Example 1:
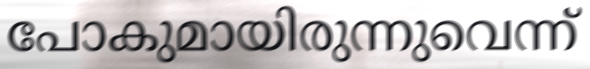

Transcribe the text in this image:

പോകുമായിരുന്നുവെന്ന്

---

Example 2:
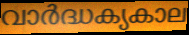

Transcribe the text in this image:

വാർദ്ധക്യകാല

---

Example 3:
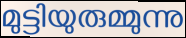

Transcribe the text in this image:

മുട്ടിയുരുമ്മുന്നു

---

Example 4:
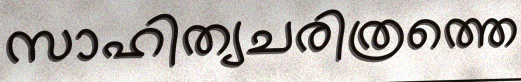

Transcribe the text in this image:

സാഹിത്യചരിത്രത്തെ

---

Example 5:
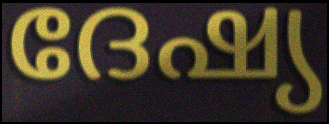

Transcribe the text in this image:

ദേഷ്യ